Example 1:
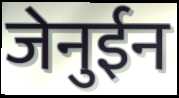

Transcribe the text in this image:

जेनुईन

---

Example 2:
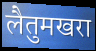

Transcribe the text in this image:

लैतुमखरा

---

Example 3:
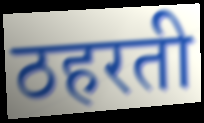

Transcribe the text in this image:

ठहरती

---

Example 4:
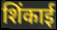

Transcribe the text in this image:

शिंकाई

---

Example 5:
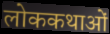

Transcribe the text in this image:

लोककथाओं